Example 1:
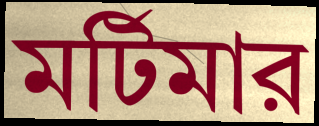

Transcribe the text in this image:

মর্টিমার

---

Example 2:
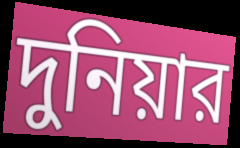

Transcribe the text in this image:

দুনিয়ার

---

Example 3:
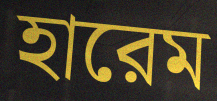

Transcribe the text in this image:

হারেম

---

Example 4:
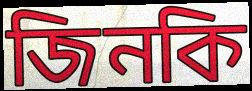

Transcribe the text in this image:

জিনকি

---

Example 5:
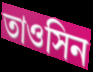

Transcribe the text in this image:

তাওসিন